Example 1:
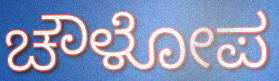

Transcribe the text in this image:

ಚೌಳೋಪ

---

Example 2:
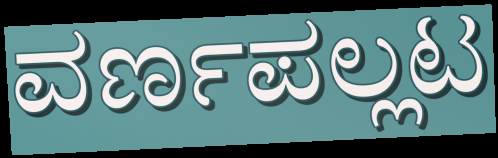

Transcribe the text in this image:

ವರ್ಣಪಲ್ಲಟ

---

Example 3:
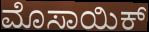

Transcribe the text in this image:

ಮೊಸಾಯಿಕ್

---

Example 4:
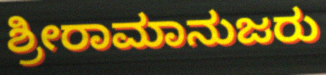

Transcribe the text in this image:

ಶ್ರೀರಾಮಾನುಜರು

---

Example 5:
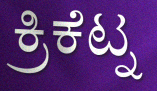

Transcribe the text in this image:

ಕ್ರಿಕೆಟ್ನ